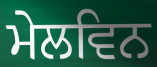
ਮੇਲਵਿਨ